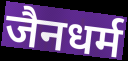
जैनधर्म